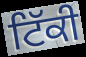
ਟਿੱਕੀ